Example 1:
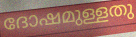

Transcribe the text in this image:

ദോഷമുള്ളതു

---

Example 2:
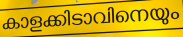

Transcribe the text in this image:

കാളക്കിടാവിനെയും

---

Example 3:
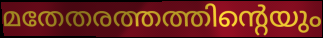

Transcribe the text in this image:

മതേതരത്തത്തിന്റെയും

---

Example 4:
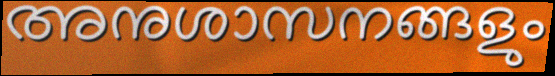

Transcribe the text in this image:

അനുശാസനങ്ങളും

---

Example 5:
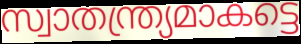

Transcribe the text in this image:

സ്വാതന്ത്ര്യമാകട്ടെ